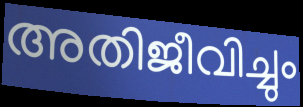
അതിജീവിച്ചും